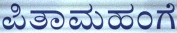
ಪಿತಾಮಹಂಗೆ